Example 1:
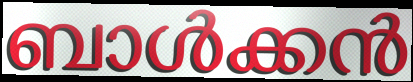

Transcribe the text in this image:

ബാൾക്കൻ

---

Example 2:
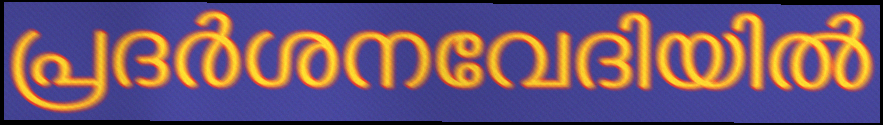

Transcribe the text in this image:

പ്രദർശനവേദിയിൽ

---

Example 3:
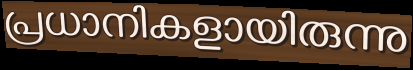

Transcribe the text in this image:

പ്രധാനികളായിരുന്നു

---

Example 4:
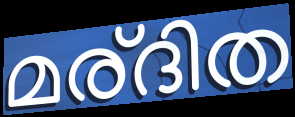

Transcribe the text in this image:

മര്ദിത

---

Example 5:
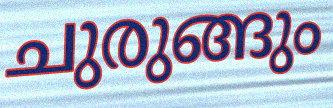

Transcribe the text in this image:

ചുരുങ്ങും